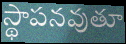
స్థాపనవుతూ